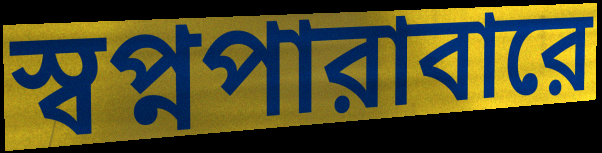
স্বপ্নপারাবারে